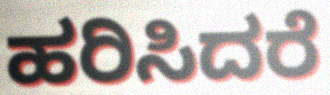
ಹರಿಸಿದರೆ